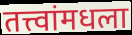
तत्त्वांमधला